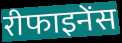
रीफाइनेंस